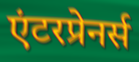
एंटरप्रेनर्स